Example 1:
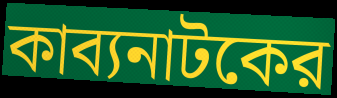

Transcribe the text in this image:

কাব্যনাটকের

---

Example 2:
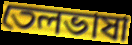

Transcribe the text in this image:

তেলভাষা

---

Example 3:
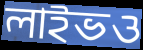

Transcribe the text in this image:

লাইভও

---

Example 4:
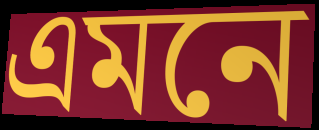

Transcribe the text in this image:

এমনে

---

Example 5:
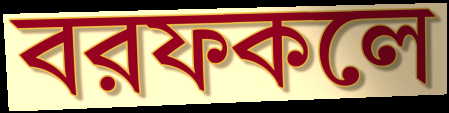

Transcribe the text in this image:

বরফকলে